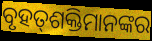
ବୃହତ୍‍ଶକ୍ତିମାନଙ୍କର